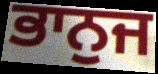
ਭਾਨੁਜ